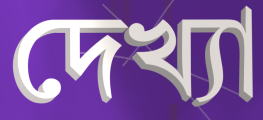
দেখ্যা